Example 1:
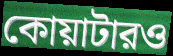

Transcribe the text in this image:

কোয়াটারও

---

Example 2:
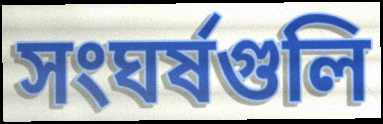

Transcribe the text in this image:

সংঘর্ষগুলি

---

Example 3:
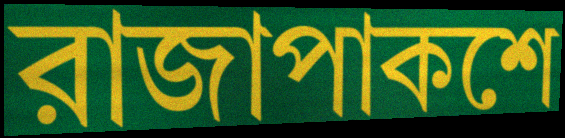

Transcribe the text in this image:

রাজাপাকশে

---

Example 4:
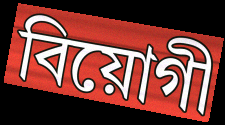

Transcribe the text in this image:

বিয়োগী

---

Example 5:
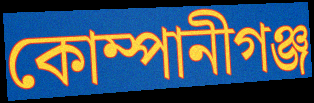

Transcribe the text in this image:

কোম্পানীগঞ্জ